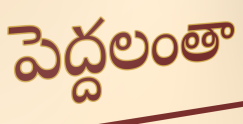
పెద్దలంతా